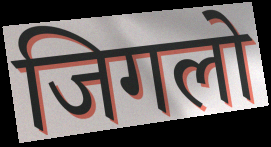
जिगलो